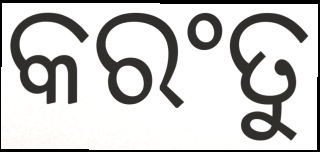
କରଂତୁ